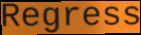
Regress